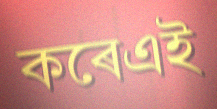
কৰেএই